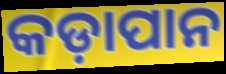
କଡ଼ାପାନ